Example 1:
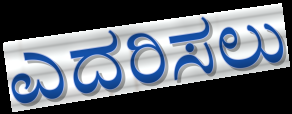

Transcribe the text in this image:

ಎದರಿಸಲು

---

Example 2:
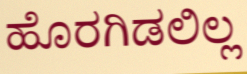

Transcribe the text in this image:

ಹೊರಗಿಡಲಿಲ್ಲ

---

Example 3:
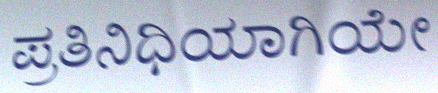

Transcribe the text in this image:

ಪ್ರತಿನಿಧಿಯಾಗಿಯೇ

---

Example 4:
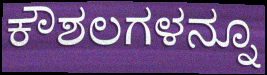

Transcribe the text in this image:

ಕೌಶಲಗಳನ್ನೂ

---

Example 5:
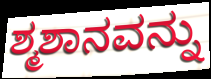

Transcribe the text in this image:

ಶ್ಮಶಾನವನ್ನು